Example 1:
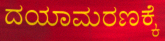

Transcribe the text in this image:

ದಯಾಮರಣಕ್ಕೆ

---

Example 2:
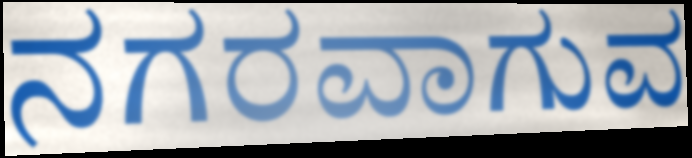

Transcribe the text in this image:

ನಗರವಾಗುವ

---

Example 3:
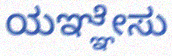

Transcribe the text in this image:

ಯಞ್ಞೇಸು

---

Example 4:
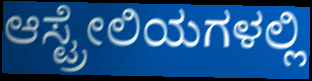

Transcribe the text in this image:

ಆಸ್ಟ್ರೇಲಿಯಗಳಲ್ಲಿ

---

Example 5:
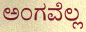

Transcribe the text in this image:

ಅಂಗವೆಲ್ಲ